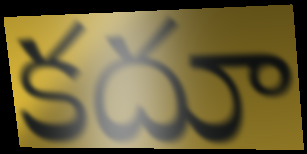
కదూ